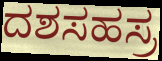
ದಶಸಹಸ್ರ